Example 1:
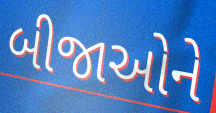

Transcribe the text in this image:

બીજાઓને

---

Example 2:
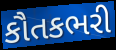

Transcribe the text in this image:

કૌતકભરી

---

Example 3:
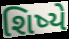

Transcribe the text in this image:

શિષ્યે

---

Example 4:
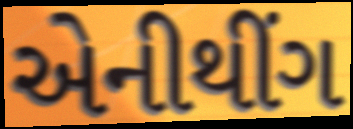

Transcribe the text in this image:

એનીથીંગ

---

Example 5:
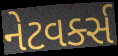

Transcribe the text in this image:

નેટવર્ક્સ